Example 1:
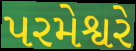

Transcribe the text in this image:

પરમેશ્વરે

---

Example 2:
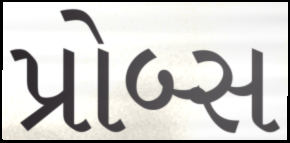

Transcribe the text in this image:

પ્રોબ્સ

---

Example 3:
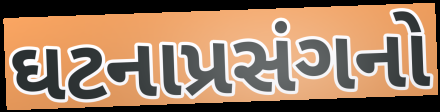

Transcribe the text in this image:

ઘટનાપ્રસંગનો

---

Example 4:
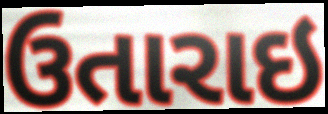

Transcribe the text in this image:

ઉતારાઇ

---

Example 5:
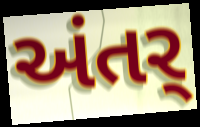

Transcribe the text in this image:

અંતર્